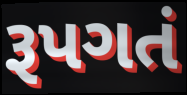
રૂપગતં